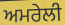
ਅਮਰੇਲੀ